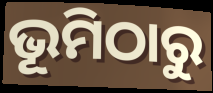
ଭୂମିଠାରୁ